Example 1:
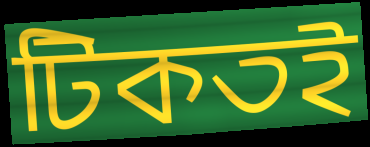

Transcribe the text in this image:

টিকতই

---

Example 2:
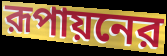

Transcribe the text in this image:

রূপায়নের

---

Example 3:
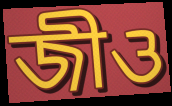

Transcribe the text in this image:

জীও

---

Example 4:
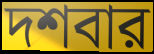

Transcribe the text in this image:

দশবার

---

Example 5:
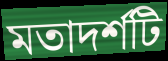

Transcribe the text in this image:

মতাদর্শটি